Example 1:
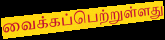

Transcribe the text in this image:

வைக்கப்பெற்றுள்ளது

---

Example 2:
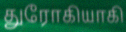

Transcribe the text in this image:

துரோகியாகி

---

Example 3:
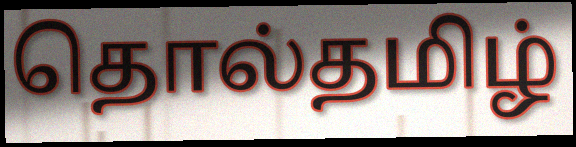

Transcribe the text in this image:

தொல்தமிழ்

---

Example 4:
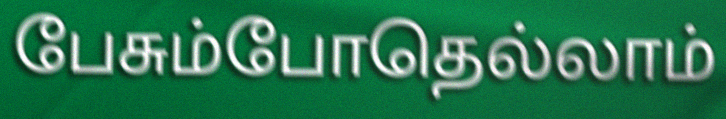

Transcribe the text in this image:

பேசும்போதெல்லாம்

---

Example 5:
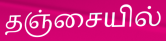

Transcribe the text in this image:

தஞ்சையில்